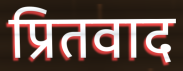
प्रितवाद